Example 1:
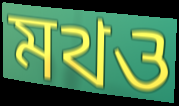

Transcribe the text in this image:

মথও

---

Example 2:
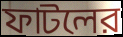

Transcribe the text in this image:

ফাটলের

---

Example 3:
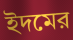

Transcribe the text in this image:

ইদমের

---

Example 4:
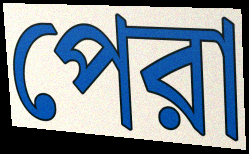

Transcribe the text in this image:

পেরা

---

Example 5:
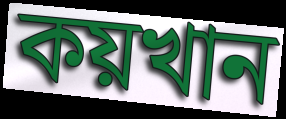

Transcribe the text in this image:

কয়খান